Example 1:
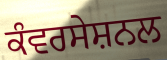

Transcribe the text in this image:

ਕੰਵਰਸੇਸ਼ਨਲ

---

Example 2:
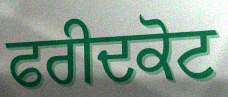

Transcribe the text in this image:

ਫਰੀਦਕੋਟ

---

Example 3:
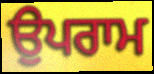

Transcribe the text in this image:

ਉਪਰਾਮ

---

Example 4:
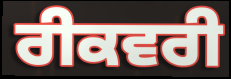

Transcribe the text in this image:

ਰੀਕਵਰੀ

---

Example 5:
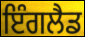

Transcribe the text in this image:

ਇੰਗਲੈਡ